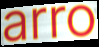
arro